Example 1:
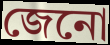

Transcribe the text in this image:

জেনো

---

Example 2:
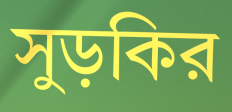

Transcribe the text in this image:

সুড়কির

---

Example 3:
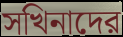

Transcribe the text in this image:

সখিনাদের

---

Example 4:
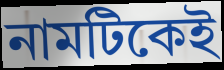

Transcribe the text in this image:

নামটিকেই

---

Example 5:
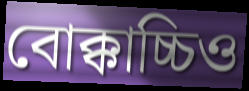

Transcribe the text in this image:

বোক্কাচ্চিও